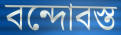
বন্দোবস্ত